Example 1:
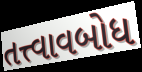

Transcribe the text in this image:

તત્ત્વાવબોધ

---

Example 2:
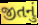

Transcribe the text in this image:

જીતનું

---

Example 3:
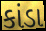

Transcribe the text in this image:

કાંડા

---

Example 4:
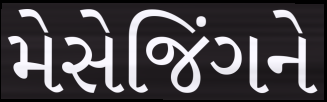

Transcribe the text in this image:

મેસેજિંગને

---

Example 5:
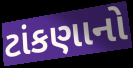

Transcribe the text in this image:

ટાંકણાનો